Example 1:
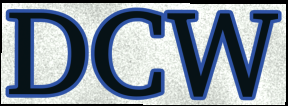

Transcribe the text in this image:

DCW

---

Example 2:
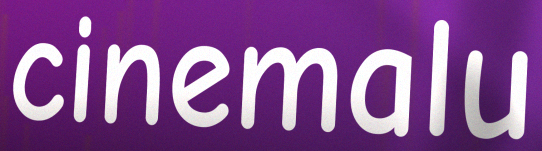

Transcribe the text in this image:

cinemalu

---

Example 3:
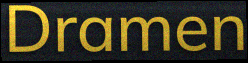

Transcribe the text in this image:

Dramen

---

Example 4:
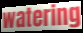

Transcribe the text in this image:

watering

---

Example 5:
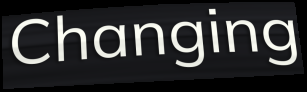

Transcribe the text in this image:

Changing